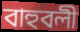
বাহুবলী